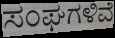
ಸಂಘಗಳಿವೆ